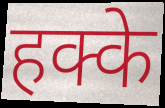
हक्के